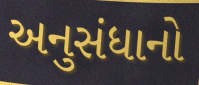
અનુસંધાનો